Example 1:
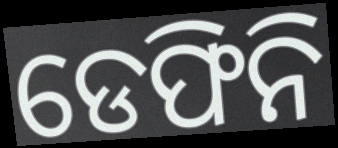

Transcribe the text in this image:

ଡେଫିନି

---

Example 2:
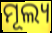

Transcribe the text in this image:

ମୂଲ୍ୟ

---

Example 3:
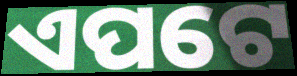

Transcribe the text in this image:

ଏପଟେ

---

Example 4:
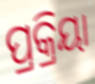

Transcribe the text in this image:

ପ୍ରକ୍ରିୟା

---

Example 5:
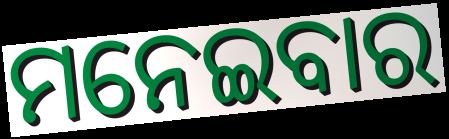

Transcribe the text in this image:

ମନେଇବାର